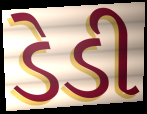
ડેડી